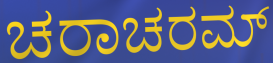
ಚರಾಚರಮ್